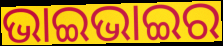
ଭାଇଭାଇର